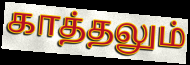
காத்தலும்